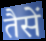
तैसें